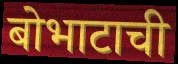
बोभाटाची